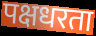
पक्षधरता